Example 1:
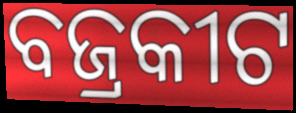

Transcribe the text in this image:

ବଜ୍ରକୀଟ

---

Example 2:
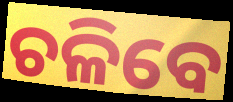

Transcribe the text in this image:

ଚଳିବେ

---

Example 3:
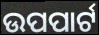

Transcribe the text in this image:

ଉପପାର୍ଟ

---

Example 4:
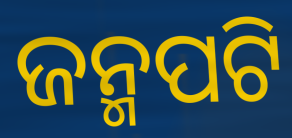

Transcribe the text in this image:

ଜନ୍ମପଟି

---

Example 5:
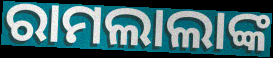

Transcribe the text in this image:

ରାମଲାଲାଙ୍କ